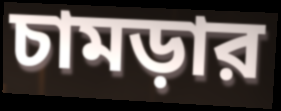
চামড়ার